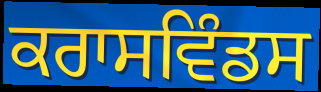
ਕਰਾਸਵਿੰਡਸ